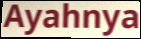
Ayahnya